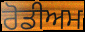
ਰੋਡੀਅਮ